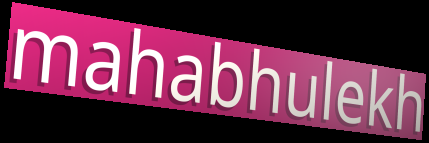
mahabhulekh